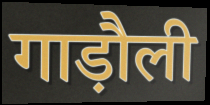
गाड़ौली